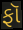
ફૉ